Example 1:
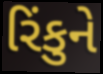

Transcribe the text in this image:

રિંકુને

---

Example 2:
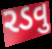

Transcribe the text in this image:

રડવુ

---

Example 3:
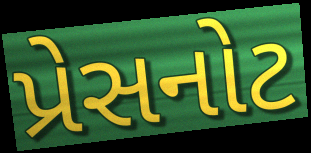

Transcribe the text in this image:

પ્રેસનોટ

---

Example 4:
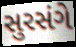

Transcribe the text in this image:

સુરસંગે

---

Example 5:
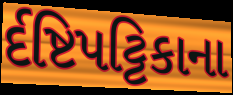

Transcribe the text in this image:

ર્દષ્ટિપટ્ટિકાના